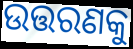
ଉତ୍ତରଣକୁ